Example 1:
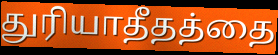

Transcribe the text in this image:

துரியாதீதத்தை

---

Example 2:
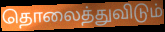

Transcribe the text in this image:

தொலைத்துவிடும்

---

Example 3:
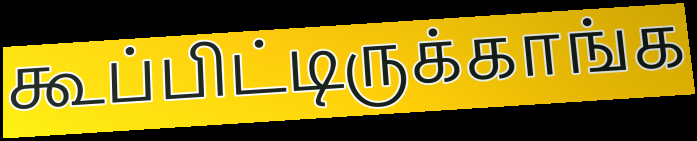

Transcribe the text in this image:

கூப்பிட்டிருக்காங்க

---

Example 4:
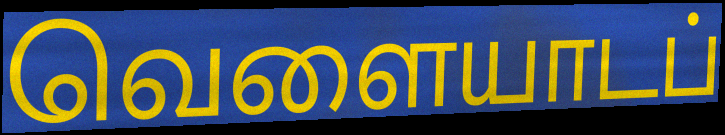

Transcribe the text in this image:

வெளையாடப்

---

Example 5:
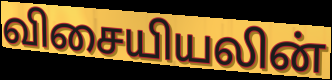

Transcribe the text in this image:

விசையியலின்